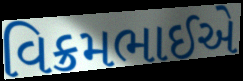
વિક્રમભાઈએ